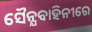
ସୈନ୍ଯବାହିନୀରେ